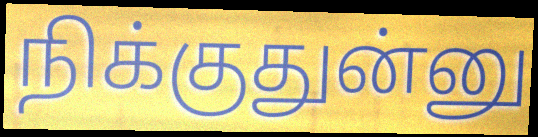
நிக்குதுன்னு